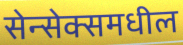
सेन्सेक्समधील